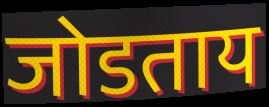
जोडताय